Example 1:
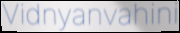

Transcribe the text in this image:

Vidnyanvahini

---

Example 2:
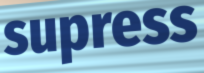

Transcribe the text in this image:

supress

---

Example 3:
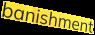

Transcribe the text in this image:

banishment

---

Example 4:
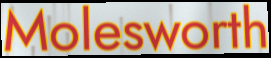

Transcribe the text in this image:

Molesworth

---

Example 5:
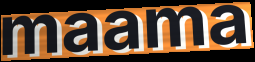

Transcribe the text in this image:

maama